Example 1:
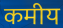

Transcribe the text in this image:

कमीय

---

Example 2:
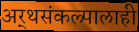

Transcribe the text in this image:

अर्थसंकल्पालाही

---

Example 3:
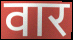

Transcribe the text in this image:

वार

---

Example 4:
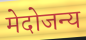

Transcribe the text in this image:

मेदोजन्य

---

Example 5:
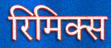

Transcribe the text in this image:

रिमिक्स